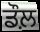
ਡੌਲ਼